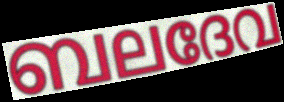
ബലദേവ